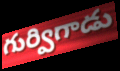
గుర్విగాడు